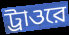
ট্রাওরে